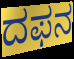
ದಫನ